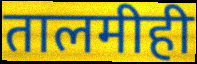
तालमीही